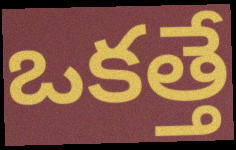
ఒకత్తే